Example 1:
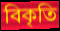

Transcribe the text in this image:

বিকৃতি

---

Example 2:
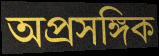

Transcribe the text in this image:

অপ্রসঙ্গিক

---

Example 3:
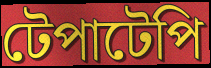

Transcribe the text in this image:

টেপাটেপি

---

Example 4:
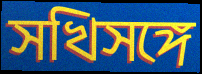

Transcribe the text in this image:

সখিসঙ্গে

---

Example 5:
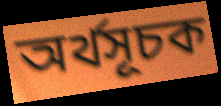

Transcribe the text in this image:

অর্থসূচক